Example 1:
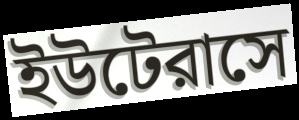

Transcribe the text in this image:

ইউটেরাসে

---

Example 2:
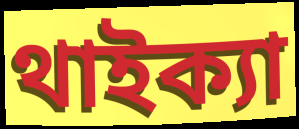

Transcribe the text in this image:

থাইক্যা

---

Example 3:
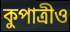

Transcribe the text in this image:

কুপাত্রীও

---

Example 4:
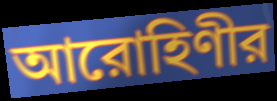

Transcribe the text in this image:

আরোহিণীর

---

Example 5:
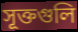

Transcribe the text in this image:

সূক্তগুলি